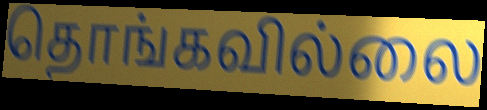
தொங்கவில்லை